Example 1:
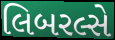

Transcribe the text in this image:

લિબરલ્સે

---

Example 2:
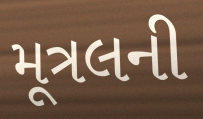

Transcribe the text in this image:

મૂત્રલની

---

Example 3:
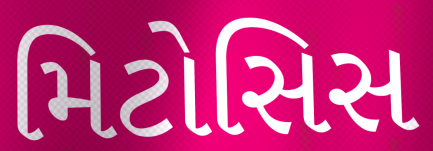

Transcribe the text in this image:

મિટોસિસ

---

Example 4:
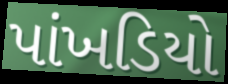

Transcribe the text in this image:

પાંખડિયો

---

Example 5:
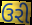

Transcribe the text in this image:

ઉરી